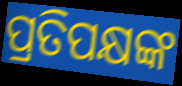
ପ୍ରତିପକ୍ଷଙ୍କ